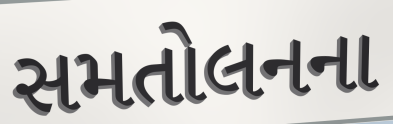
સમતોલનના